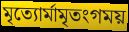
মৃত্যোর্মামৃতংগময়